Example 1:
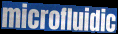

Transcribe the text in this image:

microfluidic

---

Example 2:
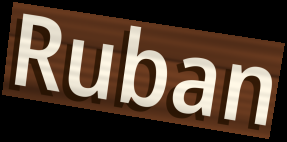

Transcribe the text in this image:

Ruban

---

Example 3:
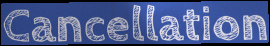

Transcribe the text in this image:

Cancellation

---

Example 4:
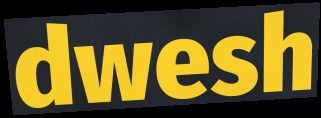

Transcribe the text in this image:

dwesh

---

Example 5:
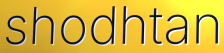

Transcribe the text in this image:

shodhtan